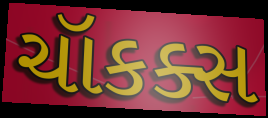
ચૉકક્સ